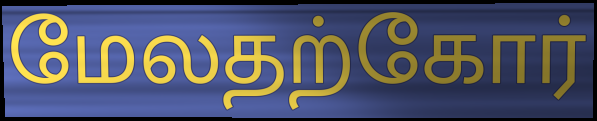
மேலதற்கோர்